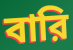
বারি